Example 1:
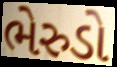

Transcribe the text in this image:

ભેરુડો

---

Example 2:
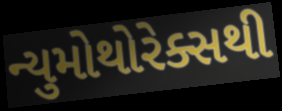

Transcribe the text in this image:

ન્યુમોથોરેક્સથી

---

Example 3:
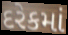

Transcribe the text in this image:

દરેકમાં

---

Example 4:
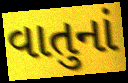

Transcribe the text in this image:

વાતુનાં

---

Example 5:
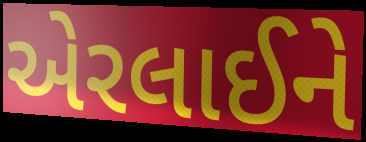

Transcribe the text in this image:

એરલાઈને